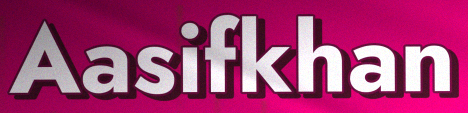
Aasifkhan